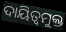
ଦାୟିତ୍ବମୁକ୍ତ